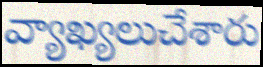
వ్యాఖ్యలుచేశారు